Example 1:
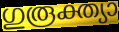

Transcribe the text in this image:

ഗുരൂക്ത്യാ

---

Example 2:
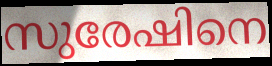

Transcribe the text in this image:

സുരേഷിനെ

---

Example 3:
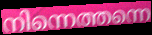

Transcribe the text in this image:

നിന്നെത്തന്നെ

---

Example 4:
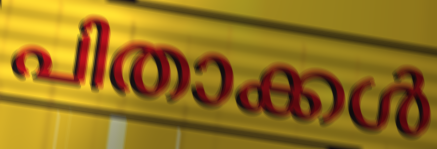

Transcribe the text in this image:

പിതാക്കൾ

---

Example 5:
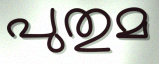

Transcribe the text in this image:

പുതുമ